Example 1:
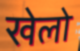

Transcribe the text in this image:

खेलो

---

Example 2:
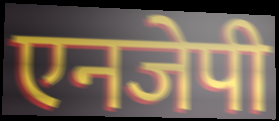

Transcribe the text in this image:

एनजेपी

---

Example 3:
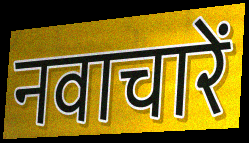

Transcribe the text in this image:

नवाचारें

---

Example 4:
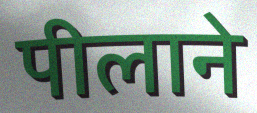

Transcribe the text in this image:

पीलाने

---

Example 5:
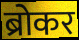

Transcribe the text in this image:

ब्रोकर